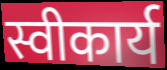
स्वीकार्य